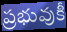
ప్రభువుకీ